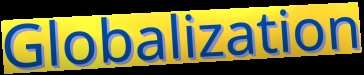
Globalization